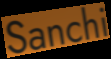
Sanchi